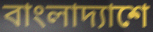
বাংলাদ্যাশে